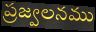
ప్రజ్వలనము